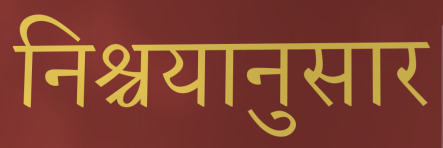
निश्चयानुसार